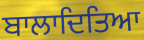
ਬਾਲਾਦਿਤਿਆ